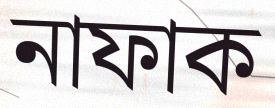
নাফাক